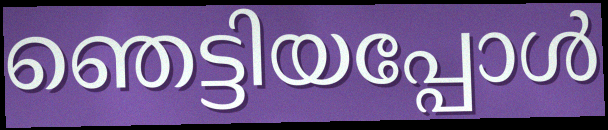
ഞെട്ടിയപ്പോൾ